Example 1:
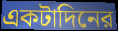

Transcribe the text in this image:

একটাদিনের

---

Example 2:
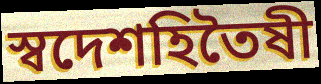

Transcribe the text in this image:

স্বদেশহিতৈষী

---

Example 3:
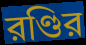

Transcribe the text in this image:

রণ্ডির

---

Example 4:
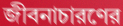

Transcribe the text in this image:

জীবনাচারণের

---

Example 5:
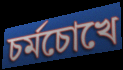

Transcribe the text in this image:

চর্মচোখে